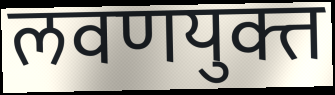
लवणयुक्त